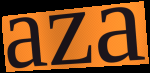
aza